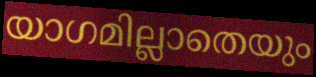
യാഗമില്ലാതെയും